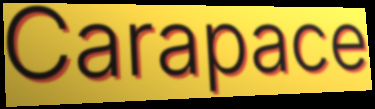
Carapace